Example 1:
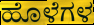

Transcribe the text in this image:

ಹೊಳೆಗಳ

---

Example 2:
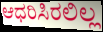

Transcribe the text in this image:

ಆಧರಿಸಿರಲಿಲ್ಲ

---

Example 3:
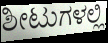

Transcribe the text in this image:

ಶೀಟುಗಳಲ್ಲಿ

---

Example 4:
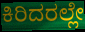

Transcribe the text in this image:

ಕಿರಿದರಲ್ಲೇ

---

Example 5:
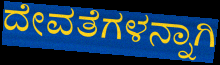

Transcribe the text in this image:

ದೇವತೆಗಳನ್ನಾಗಿ